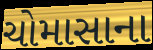
ચોમાસાના